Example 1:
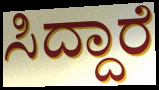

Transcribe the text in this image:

ಸಿದ್ದಾರೆ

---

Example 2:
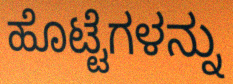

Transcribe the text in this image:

ಹೊಟ್ಟೆಗಳನ್ನು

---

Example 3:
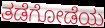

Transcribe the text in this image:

ತಡೆಗೋಡೆಯ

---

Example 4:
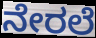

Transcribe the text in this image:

ನೇರಲೆ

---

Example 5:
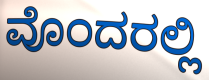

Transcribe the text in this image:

ವೊಂದರಲ್ಲಿ